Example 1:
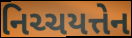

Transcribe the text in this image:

નિચ્ચયત્તેન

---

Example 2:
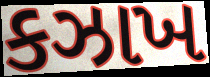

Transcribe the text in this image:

કઝાખ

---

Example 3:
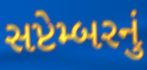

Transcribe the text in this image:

સપ્ટેમ્બરનું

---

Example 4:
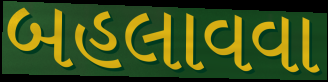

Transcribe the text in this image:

બહલાવવા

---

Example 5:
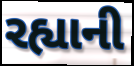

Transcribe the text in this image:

રહ્યાની